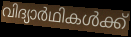
വിദ്യാർഥികൾക്ക്